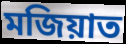
মজিয়াত